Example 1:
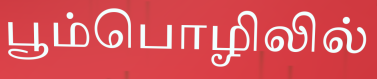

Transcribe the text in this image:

பூம்பொழிலில்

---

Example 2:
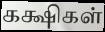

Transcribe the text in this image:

கக்ஷிகள்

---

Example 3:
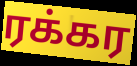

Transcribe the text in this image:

ரக்கர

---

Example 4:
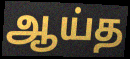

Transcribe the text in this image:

ஆய்த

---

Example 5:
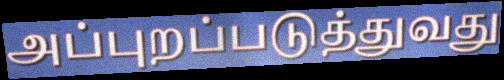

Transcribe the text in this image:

அப்புறப்படுத்துவது